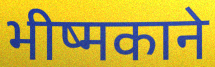
भीष्मकाने